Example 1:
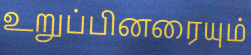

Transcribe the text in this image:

உறுப்பினரையும்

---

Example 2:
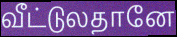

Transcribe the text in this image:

வீட்டுலதானே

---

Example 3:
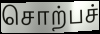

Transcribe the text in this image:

சொற்பச்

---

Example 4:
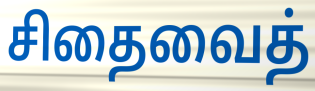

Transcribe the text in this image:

சிதைவைத்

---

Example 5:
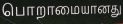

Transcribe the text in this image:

பொறாமையானது